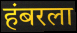
हंबरला